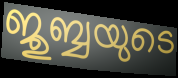
ജുബ്ബയുടെ